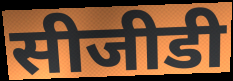
सीजीडी